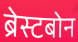
ब्रेस्टबोन